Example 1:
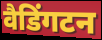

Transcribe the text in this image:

वैडिंगटन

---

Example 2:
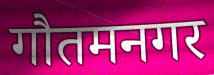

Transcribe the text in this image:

गौतमनगर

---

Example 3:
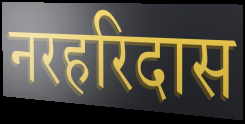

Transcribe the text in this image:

नरहरिदास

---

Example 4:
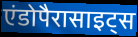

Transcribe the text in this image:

एंडोपैरासाइट्स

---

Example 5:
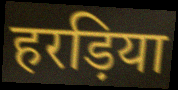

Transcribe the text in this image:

हरड़िया